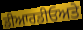
ਡੀਆਰਡੀਓਅਤੇ